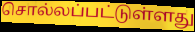
சொல்லப்பட்டுள்ளது